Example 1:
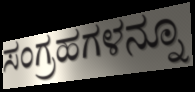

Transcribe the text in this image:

ಸಂಗ್ರಹಗಳನ್ನೂ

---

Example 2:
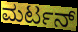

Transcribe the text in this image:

ಮರ್ಟನ್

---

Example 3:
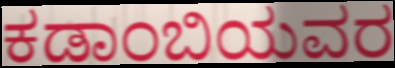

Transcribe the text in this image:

ಕಡಾಂಬಿಯವರ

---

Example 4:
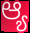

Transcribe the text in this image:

ಆ್ಯ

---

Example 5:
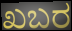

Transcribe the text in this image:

ಖಬರ